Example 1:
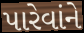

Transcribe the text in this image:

પારેવાંને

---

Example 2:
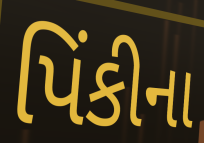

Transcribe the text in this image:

પિંકીના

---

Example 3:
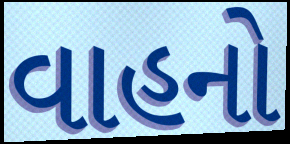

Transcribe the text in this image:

વાહનો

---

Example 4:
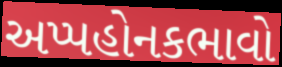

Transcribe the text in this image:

અપ્પહોનકભાવો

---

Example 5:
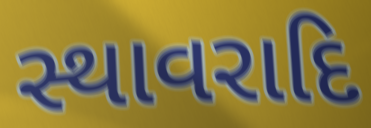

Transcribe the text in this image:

સ્થાવરાદિ